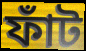
ফাঁট